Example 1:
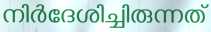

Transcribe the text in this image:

നിർദേശിച്ചിരുന്നത്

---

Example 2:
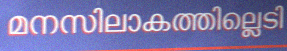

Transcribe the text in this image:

മനസിലാകത്തില്ലെടി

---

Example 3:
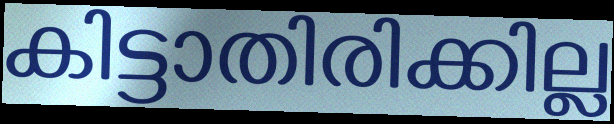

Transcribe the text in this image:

കിട്ടാതിരിക്കില്ല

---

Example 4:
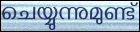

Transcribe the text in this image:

ചെയ്യുന്നുമുണ്ട്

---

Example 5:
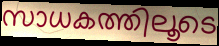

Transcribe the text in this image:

സാധകത്തിലൂടെ